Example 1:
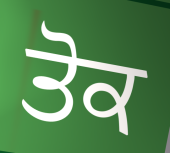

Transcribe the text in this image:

ਤੋਕ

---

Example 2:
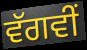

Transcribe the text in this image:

ਵੱਗਵੀਂ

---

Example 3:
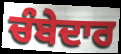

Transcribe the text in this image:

ਚੰਬੇਦਾਰ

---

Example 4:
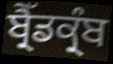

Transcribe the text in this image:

ਬ੍ਰੈੱਡਕ੍ਰੰਬ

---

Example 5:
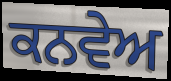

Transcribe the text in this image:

ਕਨਵੇਅ